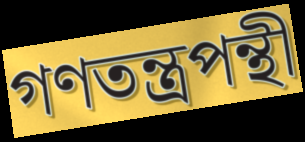
গণতন্ত্রপন্থী